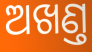
ଅଖଣ୍ତ